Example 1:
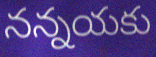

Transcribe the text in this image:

నన్నయకు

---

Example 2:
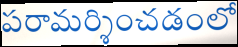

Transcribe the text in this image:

పరామర్శించడంలో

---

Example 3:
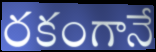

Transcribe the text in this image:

రకంగానే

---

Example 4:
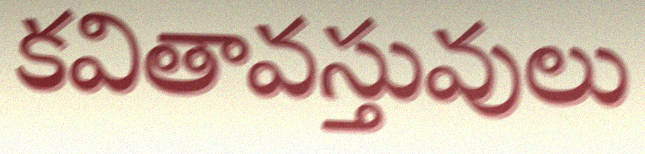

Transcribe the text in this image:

కవితావస్తువులు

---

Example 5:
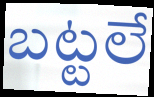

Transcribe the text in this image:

బట్టలే